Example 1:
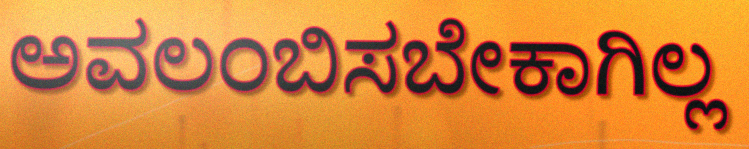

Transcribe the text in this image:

ಅವಲಂಬಿಸಬೇಕಾಗಿಲ್ಲ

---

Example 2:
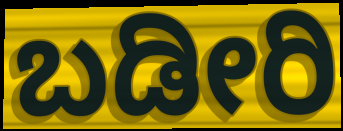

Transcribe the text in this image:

ಬಡೀರಿ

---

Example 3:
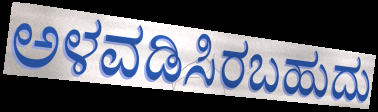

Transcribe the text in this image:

ಅಳವಡಿಸಿರಬಹುದು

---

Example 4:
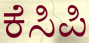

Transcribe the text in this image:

ಕೆಸಿಪಿ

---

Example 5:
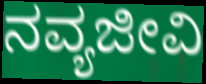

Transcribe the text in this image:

ನವ್ಯಜೀವಿ